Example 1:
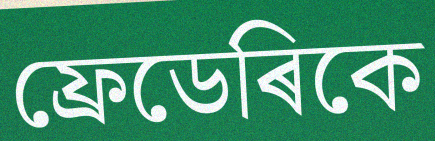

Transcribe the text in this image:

ফ্ৰেডেৰিকে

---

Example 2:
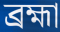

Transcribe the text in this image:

ব্ৰহ্মা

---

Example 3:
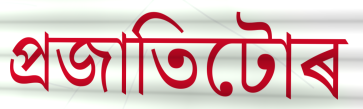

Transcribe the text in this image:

প্ৰজাতিটোৰ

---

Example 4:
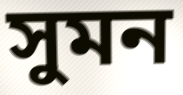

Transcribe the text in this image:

সুমন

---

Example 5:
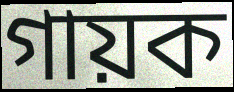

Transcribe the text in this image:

গায়ক